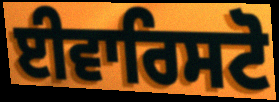
ਈਵਾਰਿਸਟੋ